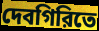
দেবগিরিতে